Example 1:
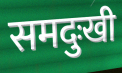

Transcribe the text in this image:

समदुःखी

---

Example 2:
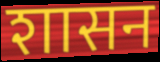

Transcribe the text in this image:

शासन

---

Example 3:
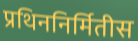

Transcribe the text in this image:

प्रथिननिर्मितीस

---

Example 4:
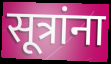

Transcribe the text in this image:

सूत्रांना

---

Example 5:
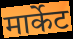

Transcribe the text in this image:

मार्केट